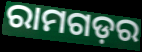
ରାମଗଡ଼ର